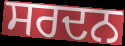
ਸਰਦਨ